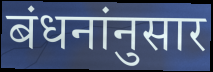
बंधनांनुसार